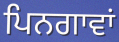
ਪਿਨਗਾਵਾਂ